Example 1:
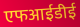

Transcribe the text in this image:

एफआईडीई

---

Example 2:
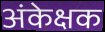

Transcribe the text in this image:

अंकेक्षक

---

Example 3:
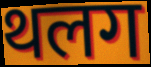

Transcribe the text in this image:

थलग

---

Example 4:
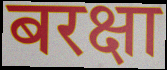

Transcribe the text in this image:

बरक्षा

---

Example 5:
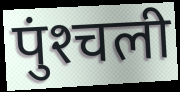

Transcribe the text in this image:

पुंश्चली